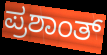
ಪ್ರಶಾಂತ್